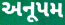
અનૂપમ